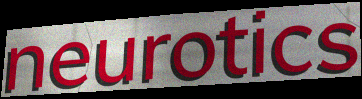
neurotics